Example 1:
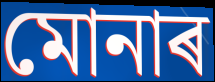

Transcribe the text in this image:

মোনাৰ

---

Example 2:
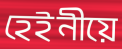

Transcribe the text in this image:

হেইনীয়ে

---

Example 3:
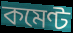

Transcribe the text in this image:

কমেণ্ট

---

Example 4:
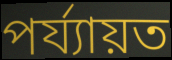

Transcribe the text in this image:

পৰ্য্যায়ত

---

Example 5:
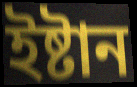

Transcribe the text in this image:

ইষ্টান